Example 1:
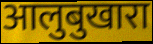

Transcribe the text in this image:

आलुबुखारा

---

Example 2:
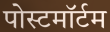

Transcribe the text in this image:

पोस्टमॉर्टम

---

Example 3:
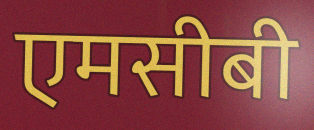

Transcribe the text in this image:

एमसीबी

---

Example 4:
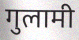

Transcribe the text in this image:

गुलामी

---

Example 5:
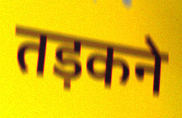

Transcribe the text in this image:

तड़कने